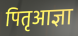
पितृआज्ञा